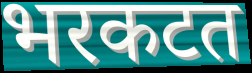
भरकटत